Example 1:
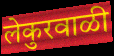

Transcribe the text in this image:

लेकुरवाळी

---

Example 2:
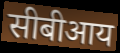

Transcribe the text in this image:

सीबीआय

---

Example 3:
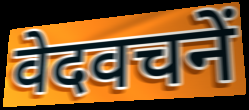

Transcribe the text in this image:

वेदवचनें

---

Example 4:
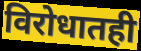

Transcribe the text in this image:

विरोधातही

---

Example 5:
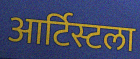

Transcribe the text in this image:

आर्टिस्टला